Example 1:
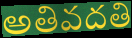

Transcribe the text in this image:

అతివదతి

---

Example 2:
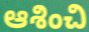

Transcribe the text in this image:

ఆశించి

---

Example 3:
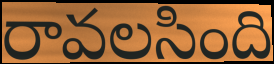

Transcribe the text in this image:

రావలసింది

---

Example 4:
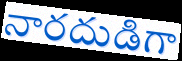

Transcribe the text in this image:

నారదుడిగా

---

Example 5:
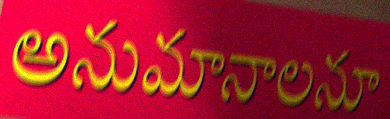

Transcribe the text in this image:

అనుమానాలనూ